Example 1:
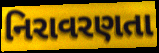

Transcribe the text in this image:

નિરાવરણતા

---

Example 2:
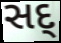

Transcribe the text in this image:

સદ્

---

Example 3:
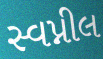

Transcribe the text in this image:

સ્વપ્નીલ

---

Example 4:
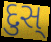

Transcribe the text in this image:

દુસ્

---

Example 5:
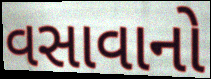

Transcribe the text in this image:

વસાવાનો